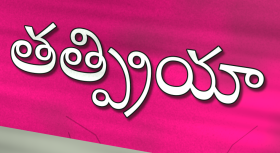
తత్ప్రియా